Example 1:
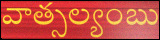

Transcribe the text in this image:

వాత్సల్యంబు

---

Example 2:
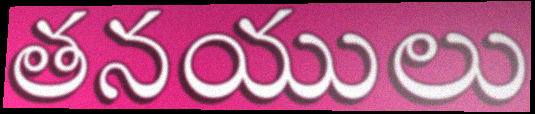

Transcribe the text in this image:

తనయులు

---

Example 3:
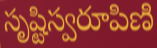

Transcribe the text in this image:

సృష్టిస్వరూపిణి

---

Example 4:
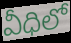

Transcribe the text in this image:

వీధిలో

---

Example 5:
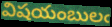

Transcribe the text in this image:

విషయంబులఁ